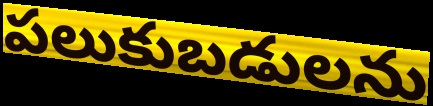
పలుకుబడులను